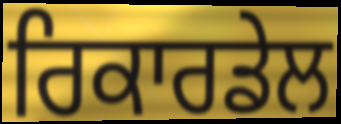
ਰਿਕਾਰਡੇਲ